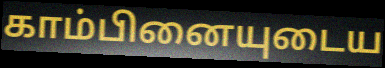
காம்பினையுடைய